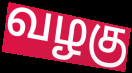
வழகு